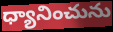
ధ్యానించును